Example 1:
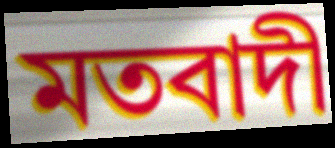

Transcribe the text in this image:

মতবাদী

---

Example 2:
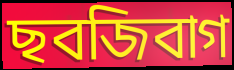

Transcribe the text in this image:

ছবজিবাগ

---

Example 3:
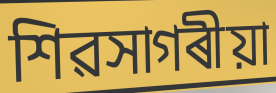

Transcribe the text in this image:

শিৱসাগৰীয়া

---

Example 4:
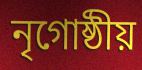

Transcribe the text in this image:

নৃগোষ্ঠীয়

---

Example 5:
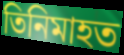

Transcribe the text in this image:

তিনিমাহত